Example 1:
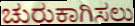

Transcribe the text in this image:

ಚುರುಕಾಗಿಸಲು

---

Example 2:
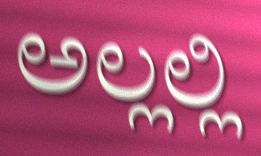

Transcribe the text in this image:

ಅಲ್ಲಲ್ಲಿ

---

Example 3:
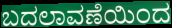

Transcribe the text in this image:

ಬದಲಾವಣೆಯಿಂದ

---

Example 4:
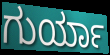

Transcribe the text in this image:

ಗುರ್ಯಾ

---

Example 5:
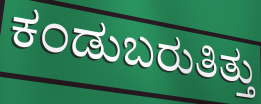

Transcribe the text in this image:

ಕಂಡುಬರುತಿತ್ತು